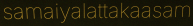
samaiyalattakaasam